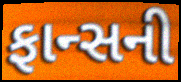
ફાન્સની